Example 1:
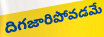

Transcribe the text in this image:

దిగజారిపోవడమే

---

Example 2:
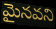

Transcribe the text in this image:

మైనవని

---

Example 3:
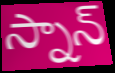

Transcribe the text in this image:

స్నాన్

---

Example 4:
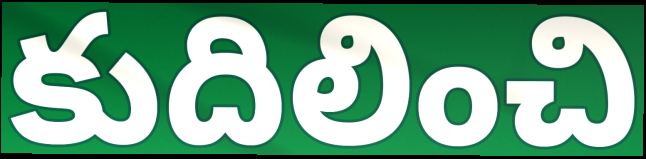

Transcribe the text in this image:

కుదిలించి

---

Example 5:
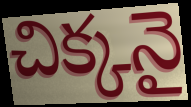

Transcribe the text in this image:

చిక్కనై